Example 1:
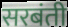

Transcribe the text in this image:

सरबंती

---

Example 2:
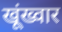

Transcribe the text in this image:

खूंख्वार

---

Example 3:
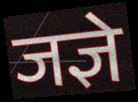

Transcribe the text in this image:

जज्ञे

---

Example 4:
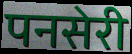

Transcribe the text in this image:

पनसेरी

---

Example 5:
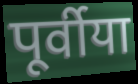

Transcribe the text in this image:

पूर्वीया